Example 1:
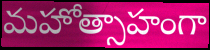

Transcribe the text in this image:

మహోత్సాహంగా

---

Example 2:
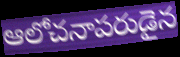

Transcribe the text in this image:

ఆలోచనాపరుడైన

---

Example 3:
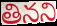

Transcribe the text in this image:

తినని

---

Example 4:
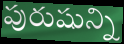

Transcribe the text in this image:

పురుషున్ని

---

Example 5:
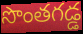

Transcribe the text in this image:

సొంతగడ్డ